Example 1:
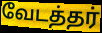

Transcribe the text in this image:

வேடத்தர்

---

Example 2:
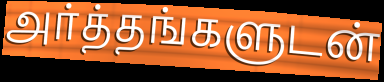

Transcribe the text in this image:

அர்த்தங்களுடன்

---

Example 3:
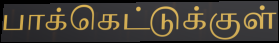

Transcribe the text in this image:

பாக்கெட்டுக்குள்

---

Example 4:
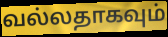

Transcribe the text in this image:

வல்லதாகவும்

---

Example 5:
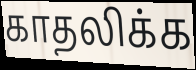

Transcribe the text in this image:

காதலிக்க